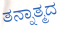
ತನ್ನಾತ್ಮದ